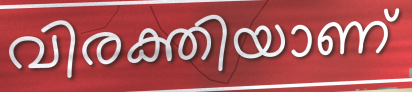
വിരക്തിയാണ്